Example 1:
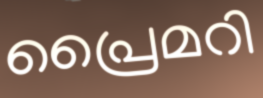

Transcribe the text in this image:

പ്രൈമറി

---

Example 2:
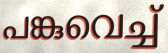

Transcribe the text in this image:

പങ്കുവെച്ച്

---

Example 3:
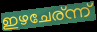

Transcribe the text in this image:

ഇഴചേര്ന്ന്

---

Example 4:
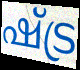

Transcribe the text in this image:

ഷ്ട്ര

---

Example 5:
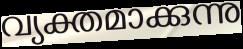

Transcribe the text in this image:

വ്യക്തമാക്കുന്നു